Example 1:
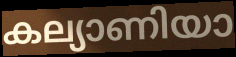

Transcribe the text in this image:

കല്യാണിയാ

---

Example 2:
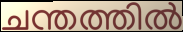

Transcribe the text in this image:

ചന്തത്തിൽ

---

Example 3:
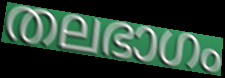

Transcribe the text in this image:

തലഭാഗം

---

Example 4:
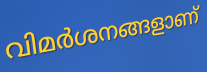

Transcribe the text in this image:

വിമർശനങ്ങളാണ്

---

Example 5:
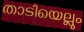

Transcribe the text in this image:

താടിയെല്ലും